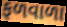
ફળવાળા